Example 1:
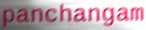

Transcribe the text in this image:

panchangam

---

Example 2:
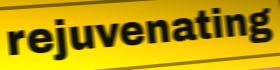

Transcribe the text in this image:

rejuvenating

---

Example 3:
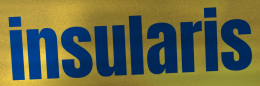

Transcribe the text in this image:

insularis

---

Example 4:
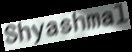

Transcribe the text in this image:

Shyashmal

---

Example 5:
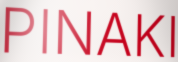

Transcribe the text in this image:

PINAKI